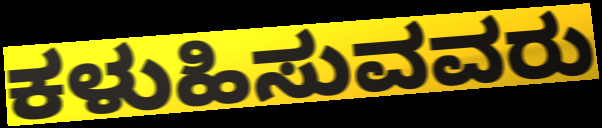
ಕಳುಹಿಸುವವರು